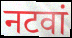
नटवां